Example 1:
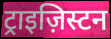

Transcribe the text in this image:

ट्राइज़िस्टन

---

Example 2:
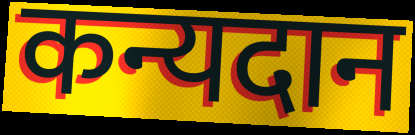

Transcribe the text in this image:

कन्यदान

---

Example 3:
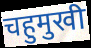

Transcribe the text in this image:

चहुमुखी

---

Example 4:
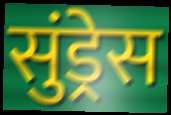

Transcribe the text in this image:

सुंड्रेस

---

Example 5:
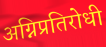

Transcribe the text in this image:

अग्निप्रतिरोधी